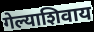
गेल्याशिवाय